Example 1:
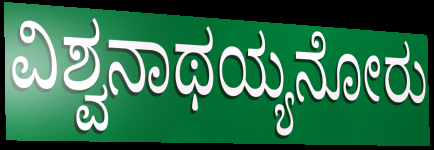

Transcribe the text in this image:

ವಿಶ್ವನಾಥಯ್ಯನೋರು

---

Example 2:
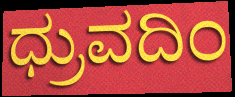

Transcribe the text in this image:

ಧ್ರುವದಿಂ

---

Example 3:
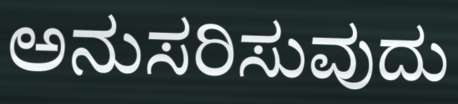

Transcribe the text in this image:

ಅನುಸರಿಸುವುದು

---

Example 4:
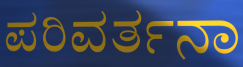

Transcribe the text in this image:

ಪರಿವರ್ತನಾ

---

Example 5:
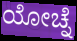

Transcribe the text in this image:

ಯೋಚ್ನೆ